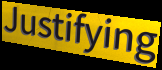
Justifying